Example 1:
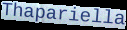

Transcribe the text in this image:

Thapariella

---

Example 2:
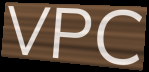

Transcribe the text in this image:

VPC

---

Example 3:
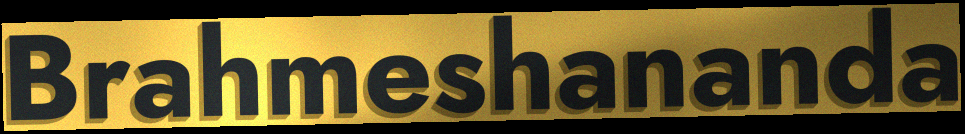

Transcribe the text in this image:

Brahmeshananda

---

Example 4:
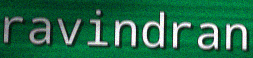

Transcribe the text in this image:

ravindran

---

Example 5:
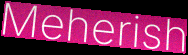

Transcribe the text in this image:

Meherish